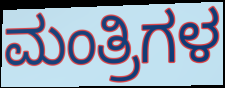
ಮಂತ್ರಿಗಳ